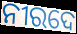
ନୀରଦେ